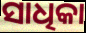
ସାଧିକା